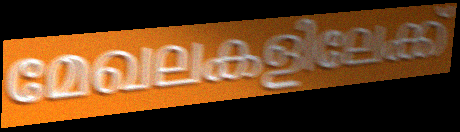
മേഖലകളിലേക്ക്